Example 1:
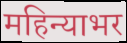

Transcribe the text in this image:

महिन्याभर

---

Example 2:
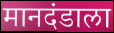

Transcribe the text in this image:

मानदंडाला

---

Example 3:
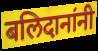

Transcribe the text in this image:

बलिदानांनी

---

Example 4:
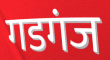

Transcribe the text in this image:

गडगंज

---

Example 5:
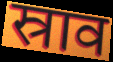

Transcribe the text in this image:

स्राव